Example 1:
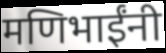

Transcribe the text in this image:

मणिभाईंनी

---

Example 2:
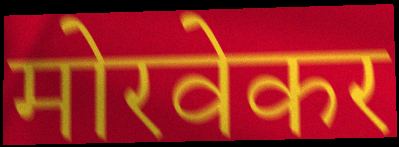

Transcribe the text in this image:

मोरवेकर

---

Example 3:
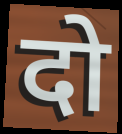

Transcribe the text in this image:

दो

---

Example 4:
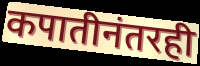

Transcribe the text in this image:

कपातीनंतरही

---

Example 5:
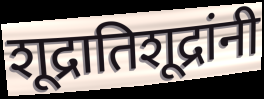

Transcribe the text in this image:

शूद्रातिशूद्रांनी